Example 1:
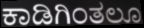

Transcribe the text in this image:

ಕಾಡಿಗಿಂತಲೂ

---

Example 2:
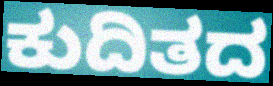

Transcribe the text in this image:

ಕುದಿತದ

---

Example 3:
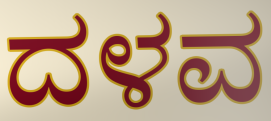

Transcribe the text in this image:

ದಳವ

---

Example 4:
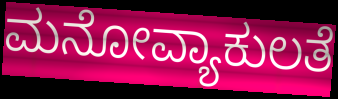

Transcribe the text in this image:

ಮನೋವ್ಯಾಕುಲತೆ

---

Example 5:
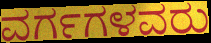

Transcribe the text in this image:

ವರ್ಗಗಳವರು